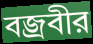
বজ্রবীর